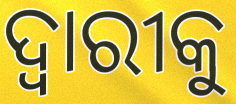
ଦ୍ଵାରୀକୁ